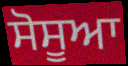
ਸੋਸੂਆ